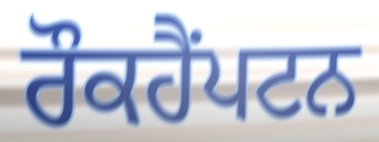
ਰੌਕਹੈਂਪਟਨ